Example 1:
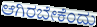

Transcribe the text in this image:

ಆಗಿರಬೇಕೆಂದು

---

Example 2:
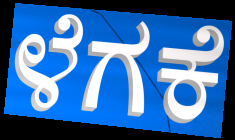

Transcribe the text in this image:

ಳೆಗಕೆ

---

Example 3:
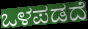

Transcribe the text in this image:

ಒಳಪಡದೆ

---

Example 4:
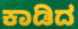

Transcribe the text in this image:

ಕಾಡಿದ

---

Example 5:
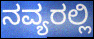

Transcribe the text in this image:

ನವ್ಯರಲ್ಲಿ